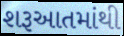
શરૂઆતમાંથી